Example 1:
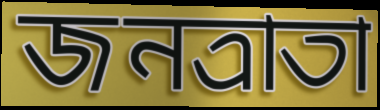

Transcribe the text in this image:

জনত্রাতা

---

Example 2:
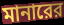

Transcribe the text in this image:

মানারের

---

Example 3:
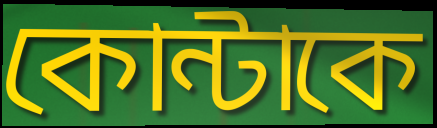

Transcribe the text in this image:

কোন্টাকে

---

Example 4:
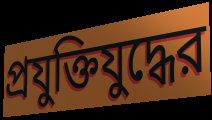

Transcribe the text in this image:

প্রযুক্তিযুদ্ধের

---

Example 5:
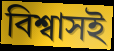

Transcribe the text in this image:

বিশ্বাসই